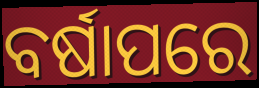
ବର୍ଷାପରେ